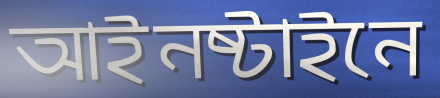
আইনষ্টাইনে